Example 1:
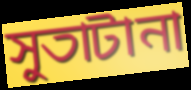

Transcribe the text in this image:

সুতাটানা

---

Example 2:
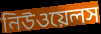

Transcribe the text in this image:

নিউওয়েলস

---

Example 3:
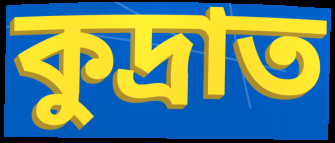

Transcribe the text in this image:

কুদ্রাত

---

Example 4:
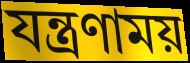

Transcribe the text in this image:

যন্ত্রণাময়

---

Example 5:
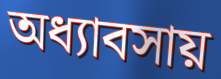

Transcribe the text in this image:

অধ্যাবসায়